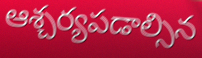
ఆశ్చర్యపడాల్సిన